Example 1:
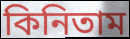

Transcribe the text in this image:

কিনিতাম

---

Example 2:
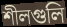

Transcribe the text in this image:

শীলগুলি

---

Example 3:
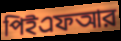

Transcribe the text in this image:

পিইএফআর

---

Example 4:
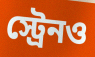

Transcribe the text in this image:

স্ট্রেনও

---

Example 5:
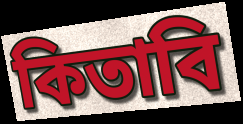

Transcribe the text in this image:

কিতাবি